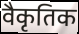
वैकृतिक